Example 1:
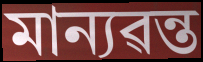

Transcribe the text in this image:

মান্যৱন্ত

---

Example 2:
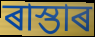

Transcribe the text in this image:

ৰাস্তাৰ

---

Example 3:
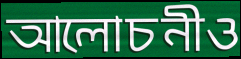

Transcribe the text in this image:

আলোচনীও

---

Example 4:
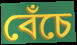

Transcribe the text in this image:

বেঁচে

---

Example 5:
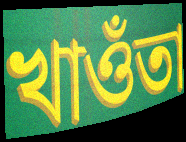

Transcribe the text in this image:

খাওঁতা